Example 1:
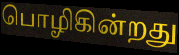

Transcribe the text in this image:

பொழிகின்றது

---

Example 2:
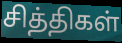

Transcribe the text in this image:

சித்திகள்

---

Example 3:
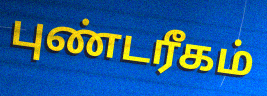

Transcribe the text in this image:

புண்டரீகம்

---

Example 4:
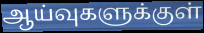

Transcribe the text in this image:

ஆய்வுகளுக்குள்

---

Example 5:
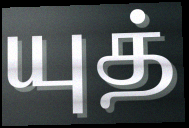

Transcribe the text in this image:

யுத்